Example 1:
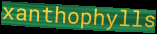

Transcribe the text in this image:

xanthophylls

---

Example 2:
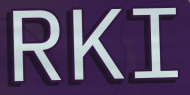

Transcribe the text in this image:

RKI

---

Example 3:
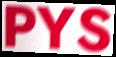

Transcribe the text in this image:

PYS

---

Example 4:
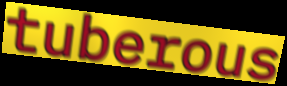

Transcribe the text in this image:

tuberous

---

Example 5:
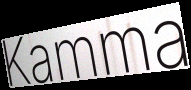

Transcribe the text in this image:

Kamma